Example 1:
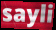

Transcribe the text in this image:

sayli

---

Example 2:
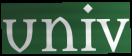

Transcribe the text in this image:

univ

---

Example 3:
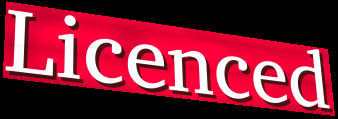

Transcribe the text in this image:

Licenced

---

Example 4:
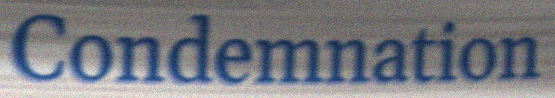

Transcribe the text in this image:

Condemnation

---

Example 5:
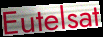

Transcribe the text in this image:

Eutelsat